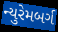
ન્યુરેમબર્ગ